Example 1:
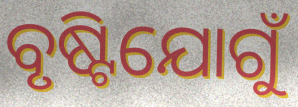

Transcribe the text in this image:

ବୃଷ୍ଟିଯୋଗୁଁ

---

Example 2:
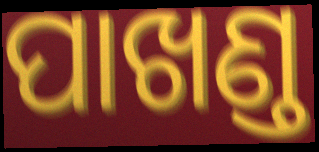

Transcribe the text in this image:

ପାଖଣ୍ଡ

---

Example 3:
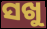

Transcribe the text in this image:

ସଖୁ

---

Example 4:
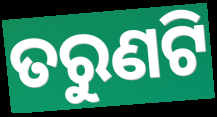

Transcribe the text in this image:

ତରୁଣଟି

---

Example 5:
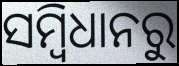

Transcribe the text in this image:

ସମ୍ବିଧାନରୁ